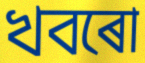
খবৰো